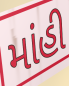
માંહી